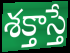
శక్తాస్తే